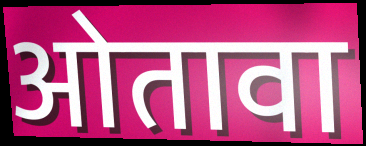
ओतावा